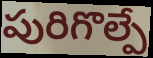
పురిగొల్పే